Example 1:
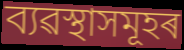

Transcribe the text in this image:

ব্যৱস্থাসমূহৰ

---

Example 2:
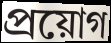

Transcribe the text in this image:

প্ৰয়োগ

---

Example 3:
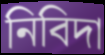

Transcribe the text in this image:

নিবিদা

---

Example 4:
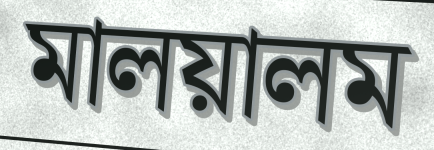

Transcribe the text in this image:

মালয়ালম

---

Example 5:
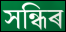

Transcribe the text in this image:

সন্ধিৰ